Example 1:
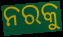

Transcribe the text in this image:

ନରକୁ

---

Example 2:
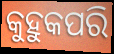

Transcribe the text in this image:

କୁହୁକପରି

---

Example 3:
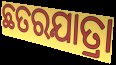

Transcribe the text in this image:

ଛତରଯାତ୍ରା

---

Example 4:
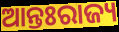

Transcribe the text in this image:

ଆନ୍ତଃରାଜ୍ୟ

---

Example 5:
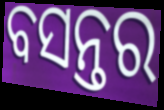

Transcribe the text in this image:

ବସନ୍ତର